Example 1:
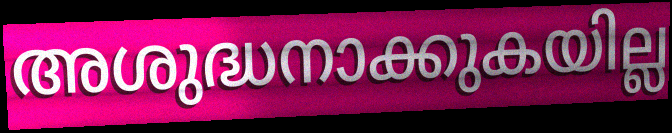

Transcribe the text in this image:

അശുദ്ധനാക്കുകയില്ല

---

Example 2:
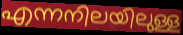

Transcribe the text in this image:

എന്നനിലയിലുള്ള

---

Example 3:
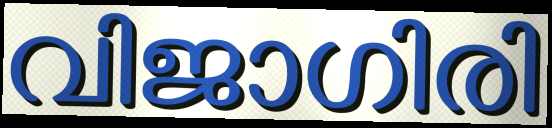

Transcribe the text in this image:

വിജാഗിരി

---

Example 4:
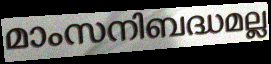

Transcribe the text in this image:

മാംസനിബദ്ധമല്ല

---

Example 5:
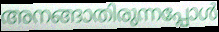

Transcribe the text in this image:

അനങ്ങാതിരുന്നപ്പോൾ